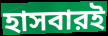
হাসবারই